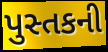
પુસ્તકની